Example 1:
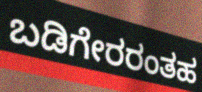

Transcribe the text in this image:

ಬಡಿಗೇರರಂತಹ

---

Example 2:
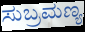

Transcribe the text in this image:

ಸುಬ್ರಮಣ್ಯ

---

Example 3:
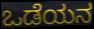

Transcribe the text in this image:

ಒಡೆಯನ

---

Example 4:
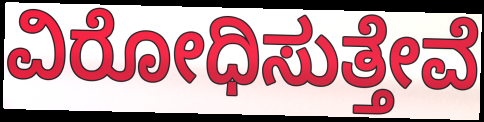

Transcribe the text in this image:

ವಿರೋಧಿಸುತ್ತೇವೆ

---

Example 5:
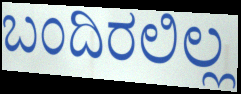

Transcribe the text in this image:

ಬಂದಿರಲಿಲ್ಲ